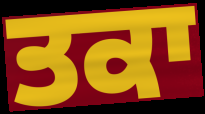
ਤਕਾ